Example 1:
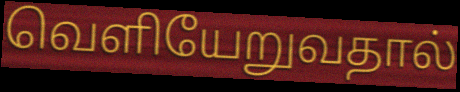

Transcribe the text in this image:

வெளியேறுவதால்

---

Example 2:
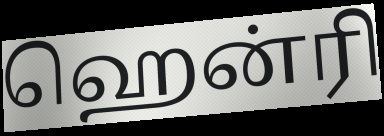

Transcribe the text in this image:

ஹென்ரி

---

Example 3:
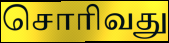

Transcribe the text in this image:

சொரிவது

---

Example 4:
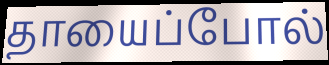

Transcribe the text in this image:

தாயைப்போல்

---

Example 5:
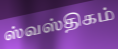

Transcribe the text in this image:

ஸ்வஸ்திகம்